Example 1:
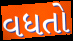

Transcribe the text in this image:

વધતો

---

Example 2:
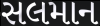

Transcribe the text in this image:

સલમાન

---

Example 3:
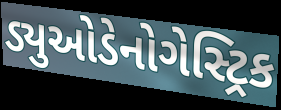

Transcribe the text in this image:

ડ્યુઓડેનોગેસ્ટ્રિક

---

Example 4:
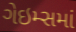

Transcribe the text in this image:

ગેઇમ્સમાં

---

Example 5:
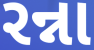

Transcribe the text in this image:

રન્ના